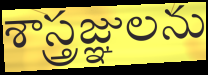
శాస్త్రజ్ఞులను